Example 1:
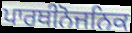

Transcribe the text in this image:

ਪਾਰਥੀਨੋਜਨਿਕ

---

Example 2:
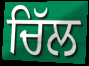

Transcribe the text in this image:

ਚਿੱਲ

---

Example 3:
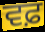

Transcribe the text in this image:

ਵਫ਼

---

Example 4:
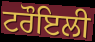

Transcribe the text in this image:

ਟਰੌਇਲੀ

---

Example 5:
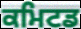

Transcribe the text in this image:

ਕਮਿਟਡ